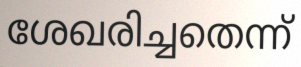
ശേഖരിച്ചതെന്ന്